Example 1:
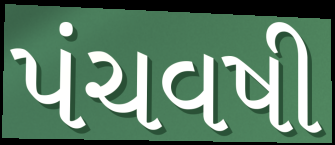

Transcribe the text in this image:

પંચવષી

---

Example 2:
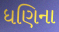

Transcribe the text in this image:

ધણિના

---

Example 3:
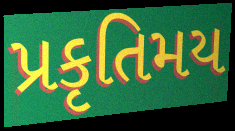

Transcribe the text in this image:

પ્રકૃતિમય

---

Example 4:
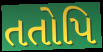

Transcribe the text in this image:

તતોપિ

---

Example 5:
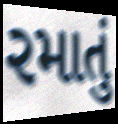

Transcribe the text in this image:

રમાતું